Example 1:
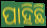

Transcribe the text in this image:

ପାହିଛି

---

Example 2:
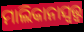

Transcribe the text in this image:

ମାଲିକାନାସ୍ୱତ୍ତ୍ୱ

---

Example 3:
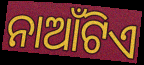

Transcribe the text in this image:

ନାଆଁଟିଏ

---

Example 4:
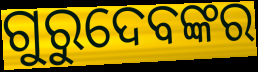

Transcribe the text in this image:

ଗୁରୁଦେବଙ୍କର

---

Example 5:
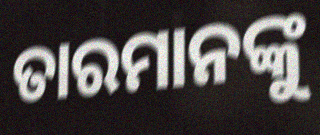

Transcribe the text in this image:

ତାରମାନଙ୍କୁ